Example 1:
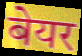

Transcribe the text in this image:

बेयर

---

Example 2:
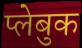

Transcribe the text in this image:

प्लेबुक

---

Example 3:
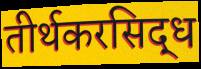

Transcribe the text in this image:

तीर्थकरसिद्ध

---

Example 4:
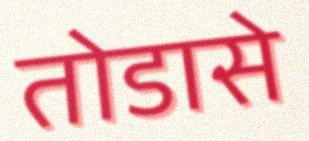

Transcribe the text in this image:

तोडासे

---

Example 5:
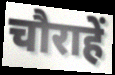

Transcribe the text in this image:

चौराहें